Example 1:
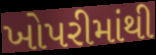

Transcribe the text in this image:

ખોપરીમાંથી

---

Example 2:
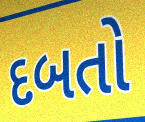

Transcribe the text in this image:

દબતો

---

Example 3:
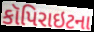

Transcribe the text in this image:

કૉપિરાઇટના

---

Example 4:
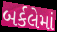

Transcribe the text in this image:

બર્કલેમાં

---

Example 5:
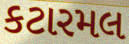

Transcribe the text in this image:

કટારમલ